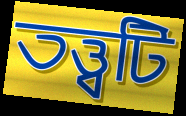
তত্ত্বটি